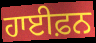
ਹਾਈਫ਼ਨ